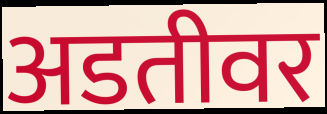
अडतीवर